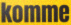
komme